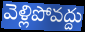
వెళ్లిపోవద్దు